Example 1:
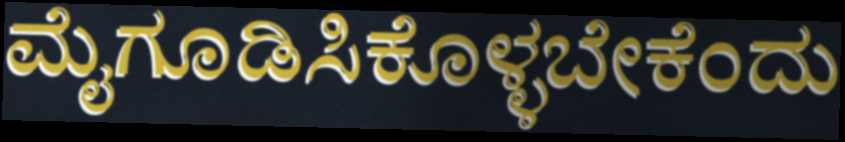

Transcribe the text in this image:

ಮೈಗೂಡಿಸಿಕೊಳ್ಳಬೇಕೆಂದು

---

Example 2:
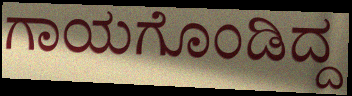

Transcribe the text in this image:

ಗಾಯಗೊಂಡಿದ್ದ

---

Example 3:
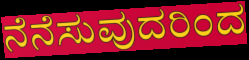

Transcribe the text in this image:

ನೆನೆಸುವುದರಿಂದ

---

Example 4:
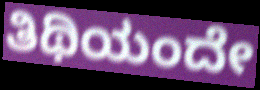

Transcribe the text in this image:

ತಿಥಿಯಂದೇ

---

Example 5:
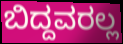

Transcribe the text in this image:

ಬಿದ್ದವರಲ್ಲ